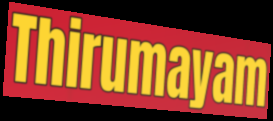
Thirumayam